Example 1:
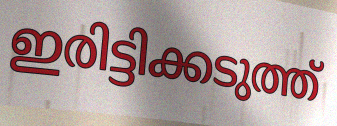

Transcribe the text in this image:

ഇരിട്ടിക്കടുത്ത്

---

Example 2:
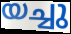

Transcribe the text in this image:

യച്ചു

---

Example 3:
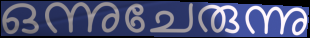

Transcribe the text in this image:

ഒന്നുചേരുന്നു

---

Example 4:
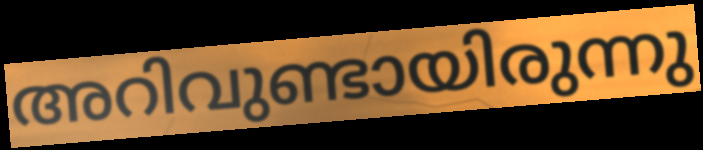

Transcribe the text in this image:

അറിവുണ്ടായിരുന്നു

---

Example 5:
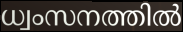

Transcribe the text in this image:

ധ്വംസനത്തിൽ